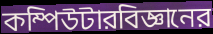
কম্পিউটারবিজ্ঞানের